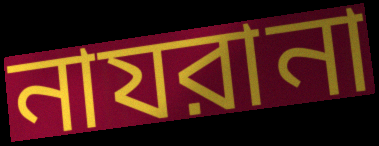
নাযরানা